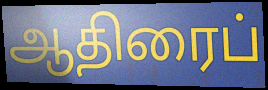
ஆதிரைப்